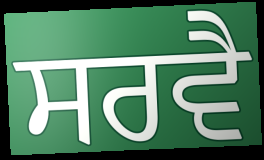
ਸਰਵੈ